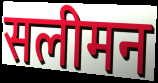
सलीमन